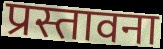
प्रस्‍तावना